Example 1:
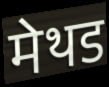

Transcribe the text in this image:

मेथड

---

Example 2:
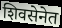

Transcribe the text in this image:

शिवसेनेत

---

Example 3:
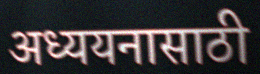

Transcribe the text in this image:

अध्ययनासाठी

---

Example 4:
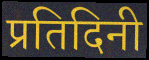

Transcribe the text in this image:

प्रतिदिनी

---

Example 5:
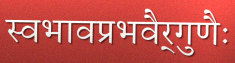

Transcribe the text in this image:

स्वभावप्रभवैर्गुणैः